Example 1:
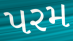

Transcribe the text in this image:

પરમ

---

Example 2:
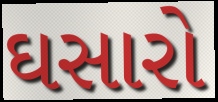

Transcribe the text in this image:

ઘસારો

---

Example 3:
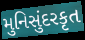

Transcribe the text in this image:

મુનિસુંદરકૃત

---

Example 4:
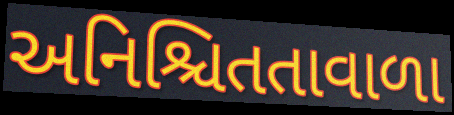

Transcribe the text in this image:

અનિશ્ચિતતાવાળા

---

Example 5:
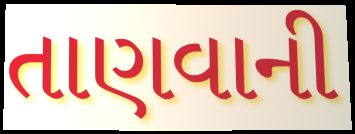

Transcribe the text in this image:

તાણવાની